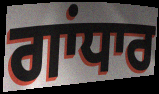
ਗਾਂਧਾਰ